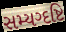
સમ્યગ્દષ્ટિ